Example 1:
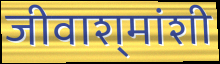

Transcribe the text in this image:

जीवाश्मांशी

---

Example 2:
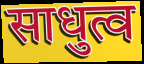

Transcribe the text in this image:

साधुत्व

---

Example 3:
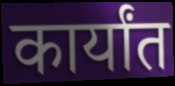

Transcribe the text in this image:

कार्यांत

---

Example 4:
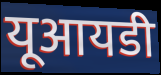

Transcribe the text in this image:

यूआयडी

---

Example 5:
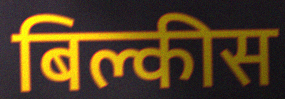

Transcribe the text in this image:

बिल्कीस